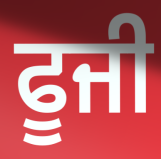
ਫੂਜੀ